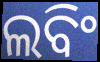
ଲବିଂ